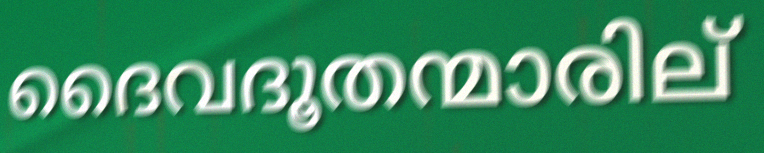
ദൈവദൂതന്മാരില്